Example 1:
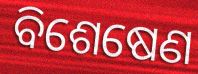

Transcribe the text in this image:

ବିଶେଷେଣ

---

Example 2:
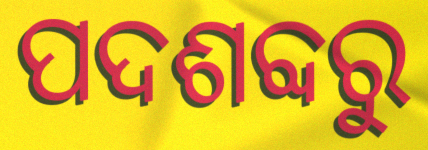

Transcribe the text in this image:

ପଦଶବ୍ଦରୁ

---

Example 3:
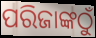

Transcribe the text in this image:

ପରିଜାଙ୍କଠୁଁ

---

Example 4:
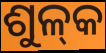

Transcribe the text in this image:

ଶୁଳ୍‌କ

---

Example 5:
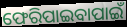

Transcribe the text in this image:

ଫେରିପାଇବାପାଇଁ